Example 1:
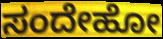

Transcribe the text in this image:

ಸಂದೇಹೋ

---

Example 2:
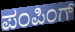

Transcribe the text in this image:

ಪಂಪಿಂಗ್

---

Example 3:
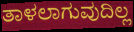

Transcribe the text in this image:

ತಾಳಲಾಗುವುದಿಲ್ಲ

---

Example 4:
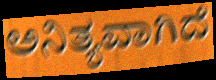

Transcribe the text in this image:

ಅನಿತ್ಯವಾಗಿದೆ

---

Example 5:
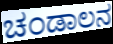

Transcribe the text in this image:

ಚಂಡಾಲನ